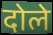
दोले